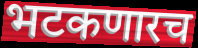
भटकणारच